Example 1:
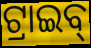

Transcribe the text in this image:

ଟ୍ରାଇବ୍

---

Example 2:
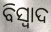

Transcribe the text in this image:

ବିସ୍ୱାଦ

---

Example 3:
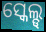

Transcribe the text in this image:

ସ୍କେଲ୍ଡ୍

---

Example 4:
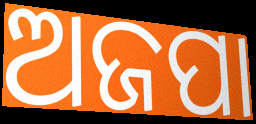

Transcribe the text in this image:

ଅଜପା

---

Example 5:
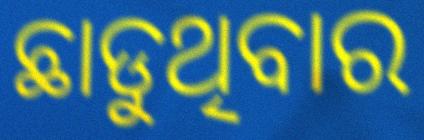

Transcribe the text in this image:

ଛାଡୁଥିବାର